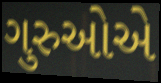
ગુરુઓએ